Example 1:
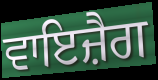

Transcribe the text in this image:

ਵਾਇਜ਼ੈਗ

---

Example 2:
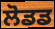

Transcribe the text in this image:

ਲੋਡਡ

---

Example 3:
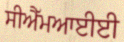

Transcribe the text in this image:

ਸੀਐੱਮਆਈਈ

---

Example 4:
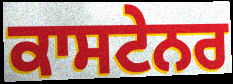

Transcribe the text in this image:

ਕਾਸਟੇਨਰ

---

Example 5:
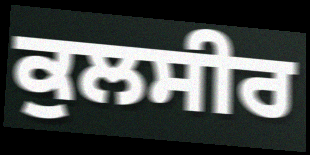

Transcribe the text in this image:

ਕੁਲਸੀਰ